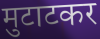
मुटाटकर